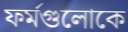
ফর্মগুলোকে